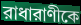
রাধারাণীকে